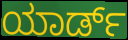
ಯಾರ್ಡ್